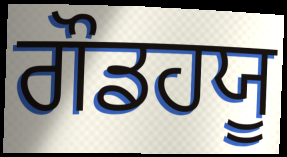
ਗੌਡਹਯੂ